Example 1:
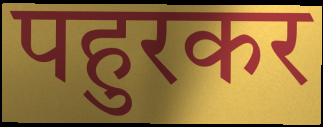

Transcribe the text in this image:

पहुरकर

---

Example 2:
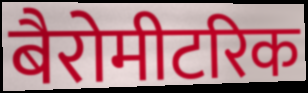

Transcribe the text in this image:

बैरोमीटरिक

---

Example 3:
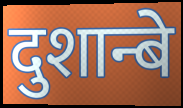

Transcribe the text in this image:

दुशान्बे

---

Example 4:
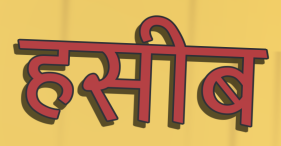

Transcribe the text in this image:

हसीब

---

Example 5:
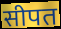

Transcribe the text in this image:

सीपत